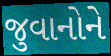
જુવાનોને